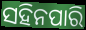
ସହିନପାରି